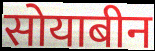
सोयाबीन